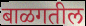
बाळगतील